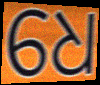
ଧେ